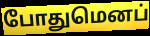
போதுமெனப்